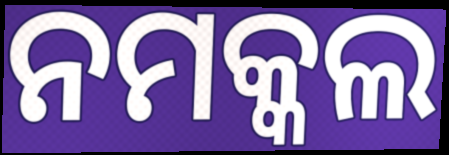
ନମକ୍କଲ